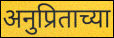
अनुप्रिताच्या